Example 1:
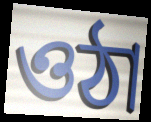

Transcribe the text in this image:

ওঠা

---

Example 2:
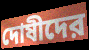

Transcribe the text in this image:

দোষীদের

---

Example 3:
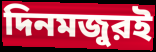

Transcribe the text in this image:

দিনমজুরই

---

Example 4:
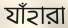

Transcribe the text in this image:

যাঁহারা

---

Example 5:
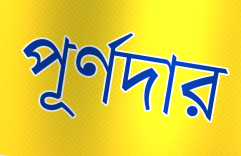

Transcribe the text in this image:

পূর্ণদার